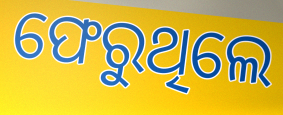
ଫେରୁଥିଲେ